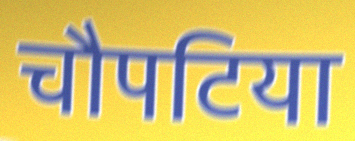
चौपटिया